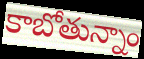
కాబోతున్నాం